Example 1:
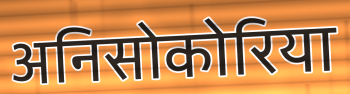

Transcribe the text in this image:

अनिसोकोरिया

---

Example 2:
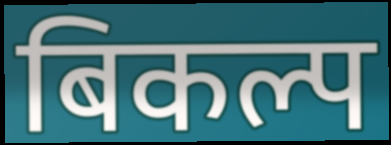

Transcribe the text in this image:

बिकल्प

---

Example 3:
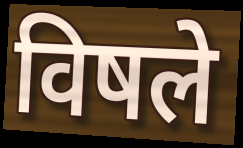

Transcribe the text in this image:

विषले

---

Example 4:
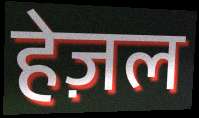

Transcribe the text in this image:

हेज़ल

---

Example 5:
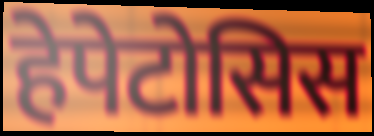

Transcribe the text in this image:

हेपेटोसिस